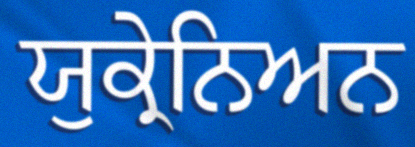
ਯੁਕ੍ਰੇਨਿਅਨ